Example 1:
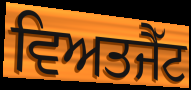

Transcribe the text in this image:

ਵਿਅਤਜੈੱਟ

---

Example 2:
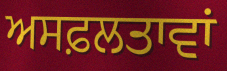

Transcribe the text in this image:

ਅਸਫ਼ਲਤਾਵਾਂ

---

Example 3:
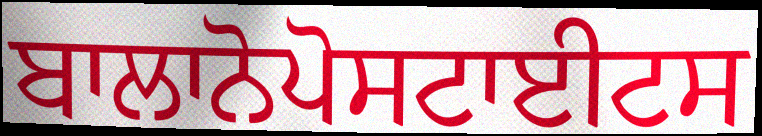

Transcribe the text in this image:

ਬਾਲਾਨੋਪੋਸਟਾਈਟਸ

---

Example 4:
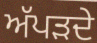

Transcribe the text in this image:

ਅੱਪੜਦੇ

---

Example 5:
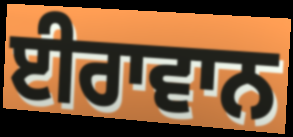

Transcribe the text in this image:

ਈਰਾਵਾਨ